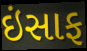
ઇંસાફ